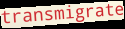
transmigrate